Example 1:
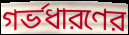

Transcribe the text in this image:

গর্ভধারণের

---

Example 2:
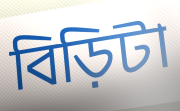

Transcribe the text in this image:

বিড়িটা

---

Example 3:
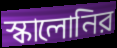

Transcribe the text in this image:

স্কালোনির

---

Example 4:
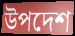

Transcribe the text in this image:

উপদেশ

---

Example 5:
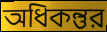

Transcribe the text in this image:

অধিকন্তুর